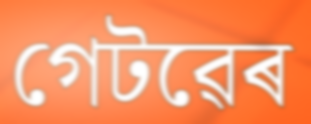
গেটৱেৰ